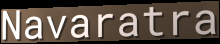
Navaratra